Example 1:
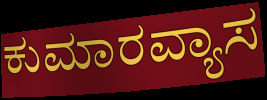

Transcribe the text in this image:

ಕುಮಾರವ್ಯಾಸ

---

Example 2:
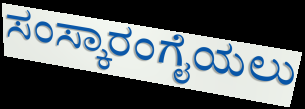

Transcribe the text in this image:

ಸಂಸ್ಕಾರಂಗೈಯಲು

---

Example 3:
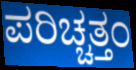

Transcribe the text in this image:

ಪರಿಚ್ಚತ್ತಂ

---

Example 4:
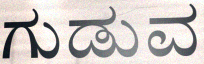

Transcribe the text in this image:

ಗುಡುವ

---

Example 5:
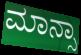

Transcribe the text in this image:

ಮಾನ್ಸಾ